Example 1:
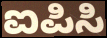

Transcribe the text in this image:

ಐಪಿಸಿ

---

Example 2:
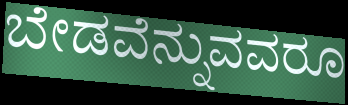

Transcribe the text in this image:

ಬೇಡವೆನ್ನುವವರೂ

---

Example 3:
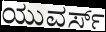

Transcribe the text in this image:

ಯುವರ್ಸ್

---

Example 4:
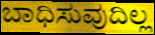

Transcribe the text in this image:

ಬಾಧಿಸುವುದಿಲ್ಲ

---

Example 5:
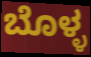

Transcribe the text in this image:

ಬೊಳ್ಳ